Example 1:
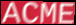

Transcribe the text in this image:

ACME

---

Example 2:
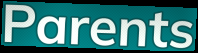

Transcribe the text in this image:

Parents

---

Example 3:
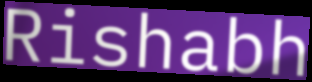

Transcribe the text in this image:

Rishabh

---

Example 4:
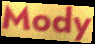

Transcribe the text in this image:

Mody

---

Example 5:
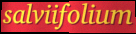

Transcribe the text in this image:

salviifolium